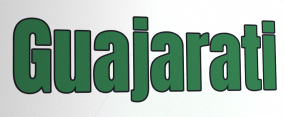
Guajarati